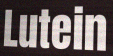
Lutein